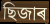
ছিজাৰ